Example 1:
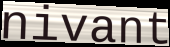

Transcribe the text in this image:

nivant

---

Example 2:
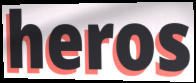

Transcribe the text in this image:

heros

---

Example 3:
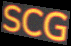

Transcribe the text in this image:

SCG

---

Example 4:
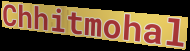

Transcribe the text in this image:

Chhitmohal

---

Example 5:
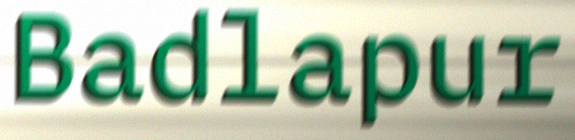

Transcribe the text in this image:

Badlapur